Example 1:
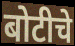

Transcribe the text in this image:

बोटीचे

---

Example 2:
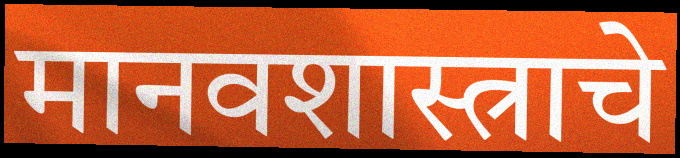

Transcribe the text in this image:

मानवशास्त्राचे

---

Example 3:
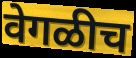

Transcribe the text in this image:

वेगळीच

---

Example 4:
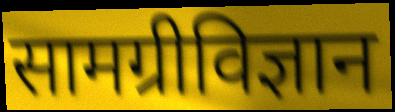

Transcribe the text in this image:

सामग्रीविज्ञान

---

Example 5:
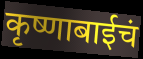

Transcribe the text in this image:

कृष्णाबाईचं